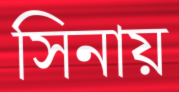
সিনায়